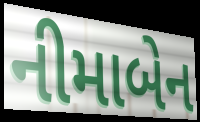
નીમાબેન